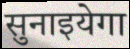
सुनाइयेगा